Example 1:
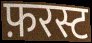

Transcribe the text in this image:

फ़रस्ट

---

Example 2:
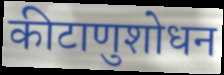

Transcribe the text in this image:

कीटाणुशोधन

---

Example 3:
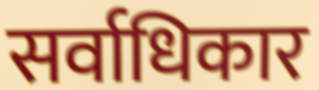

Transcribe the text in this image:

सर्वाधिकार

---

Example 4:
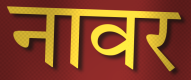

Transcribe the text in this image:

नावर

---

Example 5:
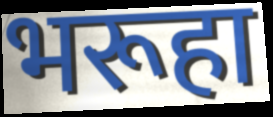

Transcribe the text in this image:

भरूहा